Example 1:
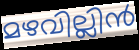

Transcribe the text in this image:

മഴവില്ലിൻ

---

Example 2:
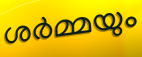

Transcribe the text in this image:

ശർമ്മയും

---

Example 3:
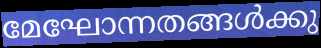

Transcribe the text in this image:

മേഘോന്നതങ്ങൾക്കു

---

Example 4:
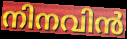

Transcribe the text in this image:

നിനവിൻ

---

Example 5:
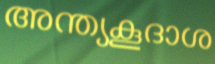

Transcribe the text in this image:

അന്ത്യകൂദാശ